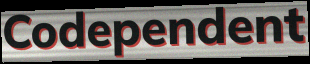
Codependent